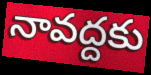
నావద్దకు